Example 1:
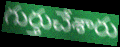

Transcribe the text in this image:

గుర్తుచేశారు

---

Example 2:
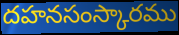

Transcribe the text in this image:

దహనసంస్కారము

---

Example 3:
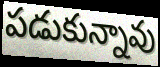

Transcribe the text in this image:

పడుకున్నావు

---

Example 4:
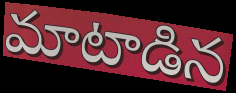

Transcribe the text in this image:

మాటాడిన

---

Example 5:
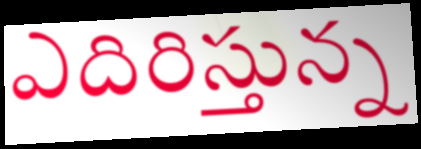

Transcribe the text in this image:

ఎదిరిస్తున్న